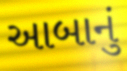
આબાનું